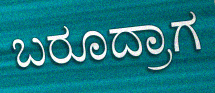
ಬರೂದ್ರಾಗ